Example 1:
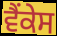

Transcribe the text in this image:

ਵੈਂਕੇਸ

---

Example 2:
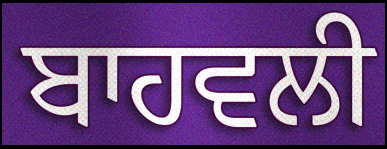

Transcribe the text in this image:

ਬਾਹਵਲੀ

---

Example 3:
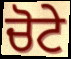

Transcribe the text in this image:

ਚੋਟੇ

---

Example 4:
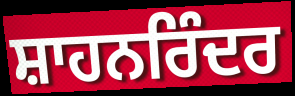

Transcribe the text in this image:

ਸ਼ਾਹਨਰਿੰਦਰ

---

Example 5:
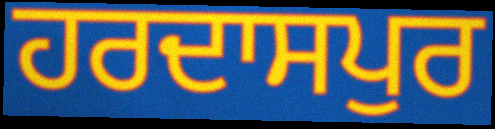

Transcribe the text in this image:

ਹਰਦਾਸਪੁਰ